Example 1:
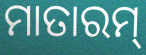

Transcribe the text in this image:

ମାତାରମ୍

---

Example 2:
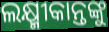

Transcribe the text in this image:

ଲକ୍ଷ୍ମୀକାନ୍ତଙ୍କୁ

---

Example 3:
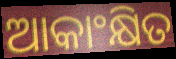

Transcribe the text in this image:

ଆକାଂକ୍ଷିତ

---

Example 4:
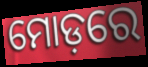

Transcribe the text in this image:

ମୋଡ଼ରେ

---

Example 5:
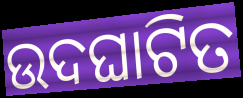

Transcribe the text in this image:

ଉଦଘାଟିତ